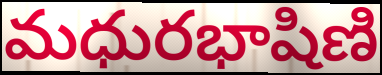
మధురభాషిణి